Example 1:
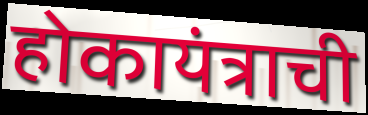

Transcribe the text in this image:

होकायंत्राची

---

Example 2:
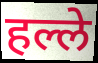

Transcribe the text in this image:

हल्ले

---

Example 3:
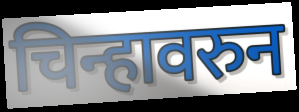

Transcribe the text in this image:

चिन्हावरुन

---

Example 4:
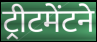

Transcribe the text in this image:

ट्रीटमेंटने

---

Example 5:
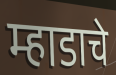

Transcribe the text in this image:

म्हाडाचे